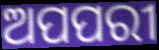
ଅପପରୀ